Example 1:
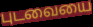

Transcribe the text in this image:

புடவையை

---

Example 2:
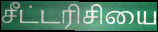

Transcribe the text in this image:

சீட்டரிசியை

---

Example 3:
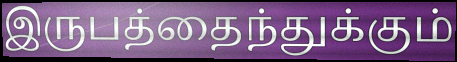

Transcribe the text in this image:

இருபத்தைந்துக்கும்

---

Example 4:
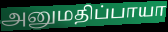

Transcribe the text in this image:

அனுமதிப்பாயா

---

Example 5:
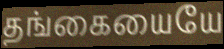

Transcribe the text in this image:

தங்கையையே